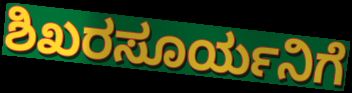
ಶಿಖರಸೂರ್ಯನಿಗೆ